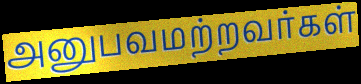
அனுபவமற்றவர்கள்